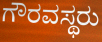
ಗೌರವಸ್ಥರು